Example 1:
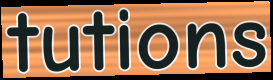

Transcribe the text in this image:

tutions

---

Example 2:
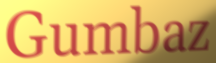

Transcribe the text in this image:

Gumbaz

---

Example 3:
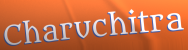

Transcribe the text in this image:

Charuchitra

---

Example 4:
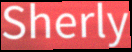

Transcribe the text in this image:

Sherly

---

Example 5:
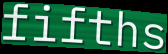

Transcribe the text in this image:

fifths